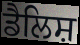
ਡੈਲਿਸ਼